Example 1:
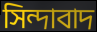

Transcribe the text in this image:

সিন্দাবাদ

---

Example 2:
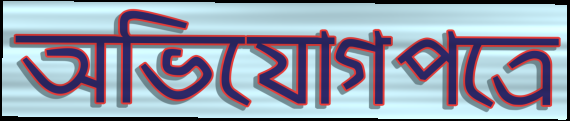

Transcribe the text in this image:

অভিযোগপত্রে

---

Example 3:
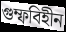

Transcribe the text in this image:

গুম্ফবিহীন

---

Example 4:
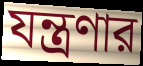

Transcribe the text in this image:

যন্ত্রণার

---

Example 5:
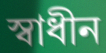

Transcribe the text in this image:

স্বাধীন